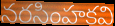
నరసింహకవి